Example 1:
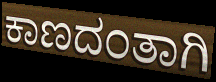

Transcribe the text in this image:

ಕಾಣದಂತಾಗಿ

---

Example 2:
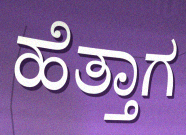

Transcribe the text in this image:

ಹೆತ್ತಾಗ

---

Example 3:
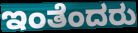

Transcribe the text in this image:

ಇಂತೆಂದರು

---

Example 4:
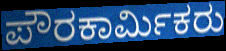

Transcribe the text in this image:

ಪೌರಕಾರ್ಮಿಕರು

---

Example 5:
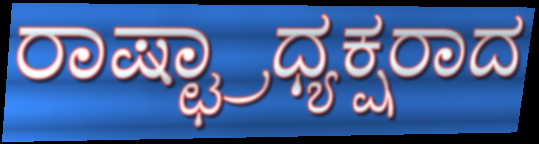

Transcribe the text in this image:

ರಾಷ್ಟ್ರಾಧ್ಯಕ್ಷರಾದ